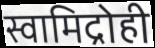
स्वामिद्रोही